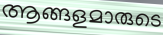
ആങ്ങളമാരുടെ